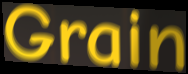
Grain